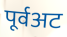
पूर्वअट